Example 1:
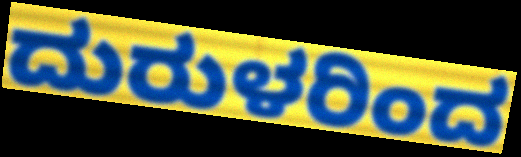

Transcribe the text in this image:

ದುರುಳರಿಂದ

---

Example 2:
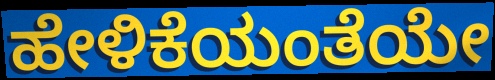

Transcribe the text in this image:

ಹೇಳಿಕೆಯಂತೆಯೇ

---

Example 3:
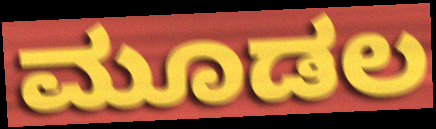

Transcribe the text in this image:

ಮೂಡಲ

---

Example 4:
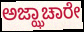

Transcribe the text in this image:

ಅಜ್ಝಾಚಾರೇ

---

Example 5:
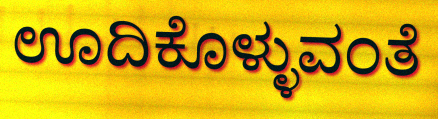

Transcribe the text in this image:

ಊದಿಕೊಳ್ಳುವಂತೆ